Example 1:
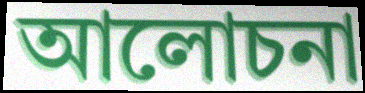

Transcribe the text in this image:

আলোচনা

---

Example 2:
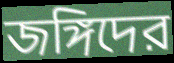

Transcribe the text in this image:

জঙ্গিদের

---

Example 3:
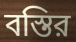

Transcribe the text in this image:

বস্তির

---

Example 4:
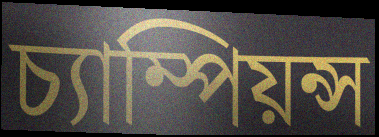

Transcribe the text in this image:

চ্যাম্পিয়ন্স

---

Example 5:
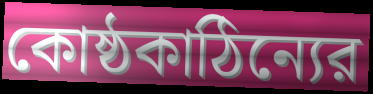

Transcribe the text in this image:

কোষ্ঠকাঠিন্যের